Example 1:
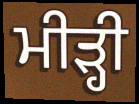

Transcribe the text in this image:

ਮੀੜ੍ਹੀ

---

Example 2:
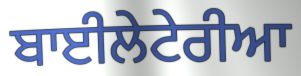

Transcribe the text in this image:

ਬਾਈਲੇਟੇਰੀਆ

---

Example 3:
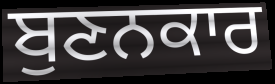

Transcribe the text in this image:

ਬੁਣਨਕਾਰ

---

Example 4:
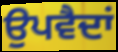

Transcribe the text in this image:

ਉਪਵੈਦਾਂ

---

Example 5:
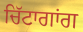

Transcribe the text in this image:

ਚਿੱਟਾਗਾਂਗ